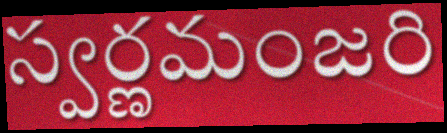
స్వర్ణమంజరి